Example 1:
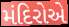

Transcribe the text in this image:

મંદિરોએ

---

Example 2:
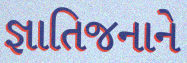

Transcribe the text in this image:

જ્ઞાતિજનાને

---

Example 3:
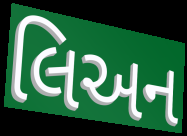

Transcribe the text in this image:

લિઅન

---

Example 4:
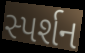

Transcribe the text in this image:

સ્પર્શન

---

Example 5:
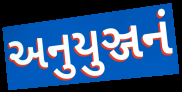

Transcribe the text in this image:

અનુયુઞ્જનં